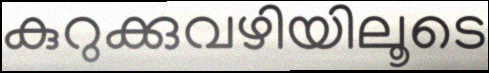
കുറുക്കുവഴിയിലൂടെ